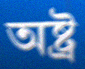
অষ্ট্ৰ